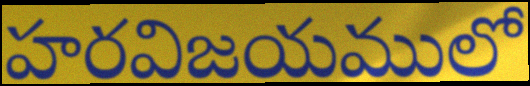
హరవిజయములో